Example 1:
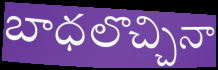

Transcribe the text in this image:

బాధలొచ్చినా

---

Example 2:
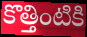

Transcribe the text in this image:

కొత్తింటికి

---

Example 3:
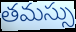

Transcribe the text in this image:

తమస్సు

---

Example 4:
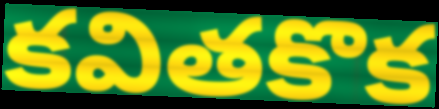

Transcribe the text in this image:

కవితకొక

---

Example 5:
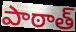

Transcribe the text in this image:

పాఠాత్